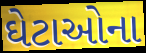
ઘેટાઓના